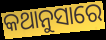
କଥାନୁସାରେ